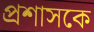
প্ৰশাসকে